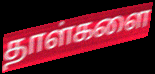
தாள்களை